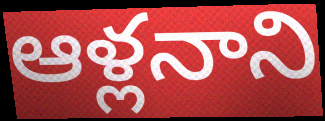
ఆళ్లనాని